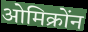
ओमिक्रोंन